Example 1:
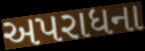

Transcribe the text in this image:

અપરાધના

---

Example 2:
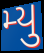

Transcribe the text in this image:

મ્યુ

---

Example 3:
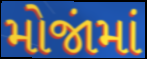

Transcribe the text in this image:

મોજાંમાં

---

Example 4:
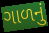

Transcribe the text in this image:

ગાળનું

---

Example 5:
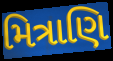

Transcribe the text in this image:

મિત્રાણિ